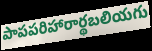
పాపపరిహారార్థబలియగు